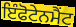
ਇੰਫੋਟੇਨਮੈਂਟ